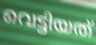
വെട്ടിയത്